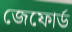
জেফোর্ড